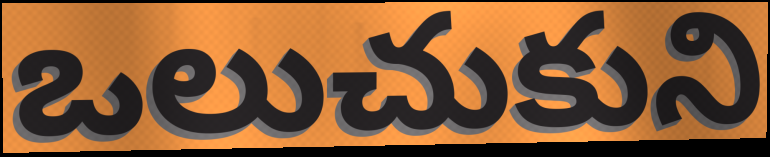
ఒలుచుకుని